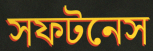
সফটনেস